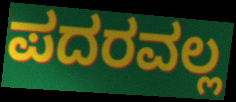
ಪದರವಲ್ಲ